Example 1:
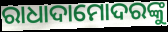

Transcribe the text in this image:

ରାଧାଦାମୋଦରଙ୍କୁ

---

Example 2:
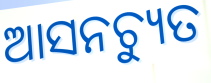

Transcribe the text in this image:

ଆସନଚ୍ୟୁତ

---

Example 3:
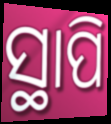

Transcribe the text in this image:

ସ୍ଥାପି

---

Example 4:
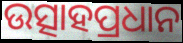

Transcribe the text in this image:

ଉତ୍ସାହପ୍ରଧାନ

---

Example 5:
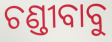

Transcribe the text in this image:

ଚଣ୍ଡୀବାବୁ